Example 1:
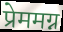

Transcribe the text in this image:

प्रेममग्न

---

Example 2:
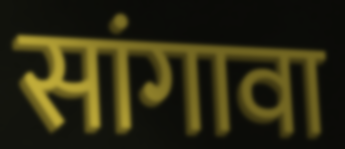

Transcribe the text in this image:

सांगावा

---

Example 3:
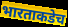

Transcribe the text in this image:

भारताकडेच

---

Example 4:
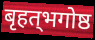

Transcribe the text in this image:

बृहत्‌भगोष्ठ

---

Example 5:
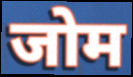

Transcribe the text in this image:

जोम